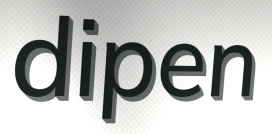
dipen